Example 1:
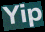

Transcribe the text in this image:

Yip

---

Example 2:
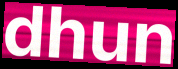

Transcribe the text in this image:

dhun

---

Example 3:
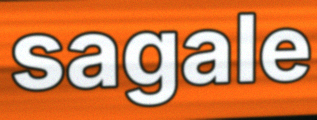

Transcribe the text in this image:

sagale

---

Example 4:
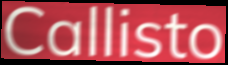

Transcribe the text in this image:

Callisto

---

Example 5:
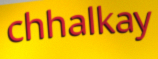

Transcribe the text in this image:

chhalkay